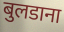
बुलडाना